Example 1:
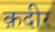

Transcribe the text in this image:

क़दीर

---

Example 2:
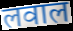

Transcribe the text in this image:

लवाल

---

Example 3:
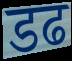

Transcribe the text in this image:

डढ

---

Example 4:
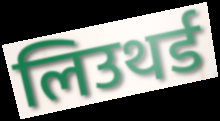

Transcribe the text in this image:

लिउथर्ड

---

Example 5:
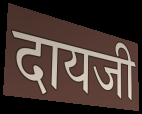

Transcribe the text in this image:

दायजी